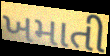
ખમાતી